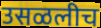
उसळलीच